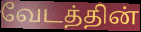
வேடத்தின்